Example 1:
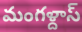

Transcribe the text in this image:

మంగళ్దాస్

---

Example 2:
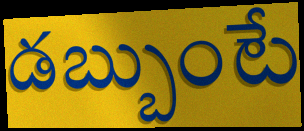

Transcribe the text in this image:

డబ్బుంటే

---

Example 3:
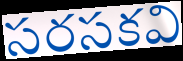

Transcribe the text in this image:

సరసకవి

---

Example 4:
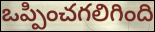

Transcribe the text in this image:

ఒప్పించగలిగింది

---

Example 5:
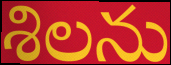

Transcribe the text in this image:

శిలను